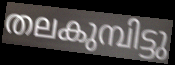
തലകുമ്പിട്ടു